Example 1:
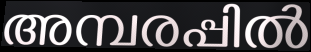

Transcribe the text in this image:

അമ്പരപ്പിൽ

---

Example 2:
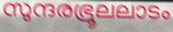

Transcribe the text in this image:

സുന്ദരഭ്രൂലലാടം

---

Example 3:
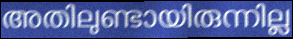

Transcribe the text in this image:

അതിലുണ്ടായിരുന്നില്ല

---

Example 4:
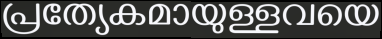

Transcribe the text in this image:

പ്രത്യേകമായുള്ളവയെ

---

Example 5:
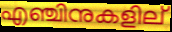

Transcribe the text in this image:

എഞ്ചിനുകളില്